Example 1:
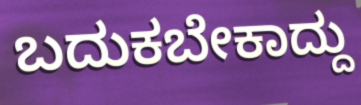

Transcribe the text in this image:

ಬದುಕಬೇಕಾದ್ದು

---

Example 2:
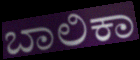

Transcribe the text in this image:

ಬಾಲಿಕಾ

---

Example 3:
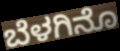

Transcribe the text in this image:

ಬೆಳಗಿನೊ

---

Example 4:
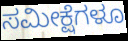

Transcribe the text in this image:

ಸಮೀಕ್ಷೆಗಳೂ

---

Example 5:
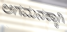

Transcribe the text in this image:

ಆಗಮನಕ್ಕಾಗಿ